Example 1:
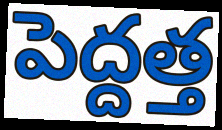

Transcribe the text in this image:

పెద్దత్త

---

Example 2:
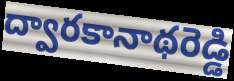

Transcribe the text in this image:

ద్వారకానాథరెడ్డి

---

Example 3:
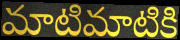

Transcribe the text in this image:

మాటిమాటికి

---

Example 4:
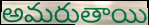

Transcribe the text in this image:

అమరుతాయి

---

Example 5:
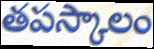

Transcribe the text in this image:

తపస్కాలం